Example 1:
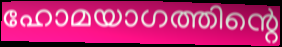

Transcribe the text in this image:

ഹോമയാഗത്തിന്റെ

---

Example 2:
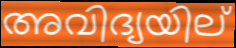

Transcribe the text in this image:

അവിദ്യയില്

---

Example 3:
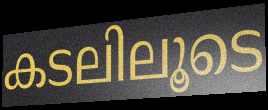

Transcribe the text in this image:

കടലിലൂടെ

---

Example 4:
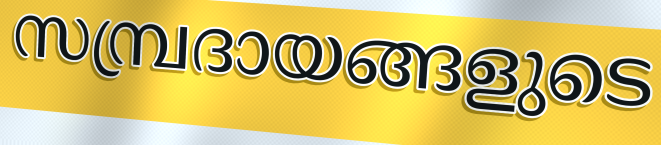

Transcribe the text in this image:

സമ്പ്രദായങ്ങളുടെ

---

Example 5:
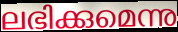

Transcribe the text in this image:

ലഭിക്കുമെന്നു